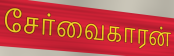
சேர்வைகாரன்